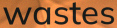
wastes